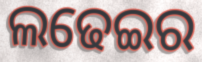
ଲଢେଇର